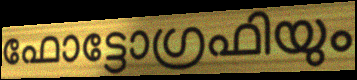
ഫോട്ടോഗ്രഫിയും